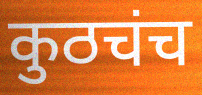
कुठचंच